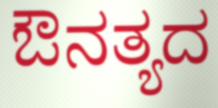
ಔನತ್ಯದ